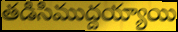
తడిసిముద్దయ్యాయి